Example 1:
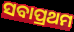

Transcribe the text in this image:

ସବାପ୍ରଥମ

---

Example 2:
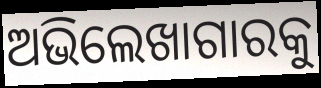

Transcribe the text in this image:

ଅଭିଲେଖାଗାରକୁ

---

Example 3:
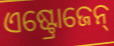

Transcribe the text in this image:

ଏଷ୍ଟ୍ରୋଜେନ୍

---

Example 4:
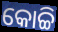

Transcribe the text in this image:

କୋଚ୍ଚି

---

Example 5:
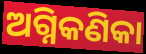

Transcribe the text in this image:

ଅଗ୍ନିକଣିକା